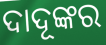
ଦାଦୂଙ୍କର